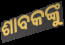
ଶାବକଙ୍କୁ